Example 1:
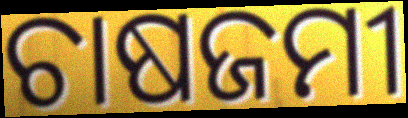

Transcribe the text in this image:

ଚାଷଜମୀ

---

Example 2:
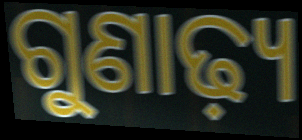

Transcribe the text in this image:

ଗୁଣାଢ଼୍ୟ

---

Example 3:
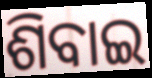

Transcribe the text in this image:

ଶିବାଇ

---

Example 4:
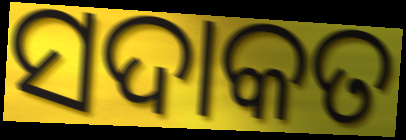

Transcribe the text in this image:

ସଦାକତ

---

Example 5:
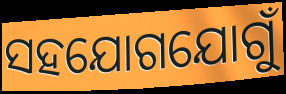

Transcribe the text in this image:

ସହଯୋଗଯୋଗୁଁ